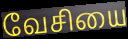
வேசியை